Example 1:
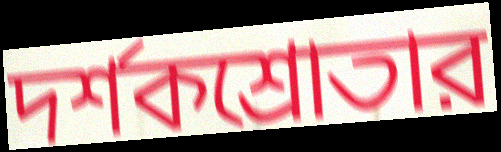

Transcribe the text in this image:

দর্শকশ্রোতার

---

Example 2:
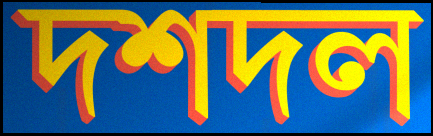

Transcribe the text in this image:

দশদল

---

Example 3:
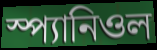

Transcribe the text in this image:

স্প্যানিওল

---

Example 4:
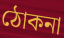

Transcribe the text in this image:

ঠোকনা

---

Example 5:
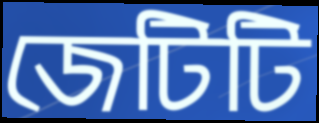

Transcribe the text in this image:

জেটিটি